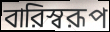
বারিস্বরূপ